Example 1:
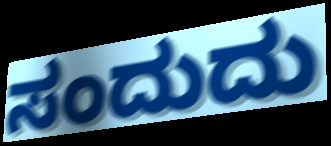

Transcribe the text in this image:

ಸಂದುದು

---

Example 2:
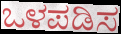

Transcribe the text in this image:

ಒಳಪಡಿಸ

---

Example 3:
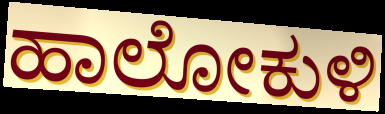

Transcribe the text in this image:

ಹಾಲೋಕುಳಿ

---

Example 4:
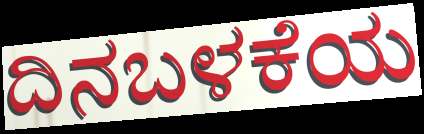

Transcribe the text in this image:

ದಿನಬಳಕೆಯ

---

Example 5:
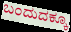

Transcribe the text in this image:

ಬಂದುದಕ್ಕೂ